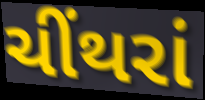
ચીંથરાં